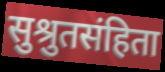
सुश्रुतसंहिता